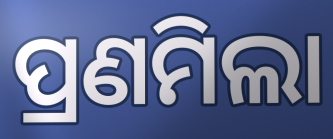
ପ୍ରଣମିଲା